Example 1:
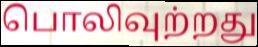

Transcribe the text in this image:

பொலிவுற்றது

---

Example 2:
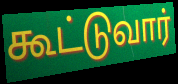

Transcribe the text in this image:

கூட்டுவார்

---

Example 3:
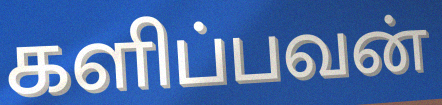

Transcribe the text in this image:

களிப்பவன்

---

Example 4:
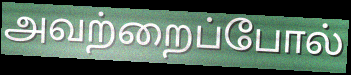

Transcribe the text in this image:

அவற்றைப்போல்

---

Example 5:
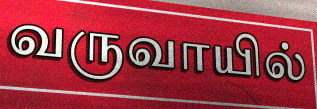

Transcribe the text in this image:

வருவாயில்